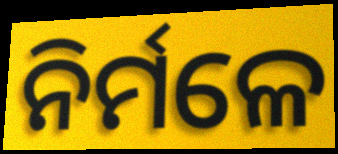
ନିର୍ମଳେ